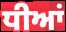
ਧੀਆਂ